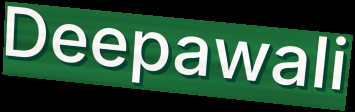
Deepawali